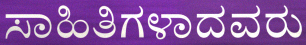
ಸಾಹಿತಿಗಳಾದವರು